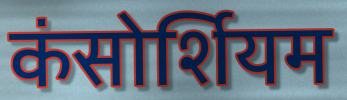
कंसोर्शियम